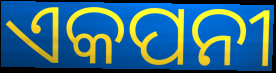
ଏକପନୀ